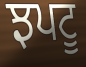
ਝਪਟੂ